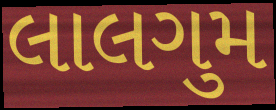
લાલગુમ